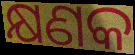
କ୍ଷଣକ